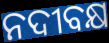
ନଦୀବକ୍ଷ